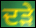
ਦੜੇ